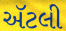
ઍટલી